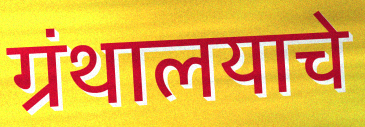
ग्रंथालयाचे